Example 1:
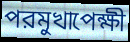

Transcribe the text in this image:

পরমুখাপেক্ষী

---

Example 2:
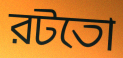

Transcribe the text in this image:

রটতো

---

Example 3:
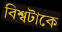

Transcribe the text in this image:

বিশ্বটাকে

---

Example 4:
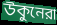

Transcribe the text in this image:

উকুনেরা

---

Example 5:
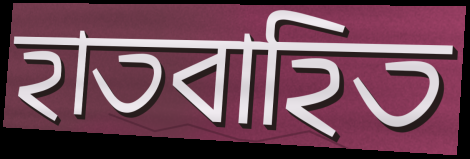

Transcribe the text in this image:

হাতবাহিত